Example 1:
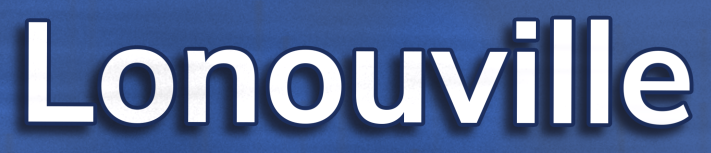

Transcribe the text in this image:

Lonouville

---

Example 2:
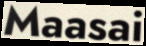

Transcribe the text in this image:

Maasai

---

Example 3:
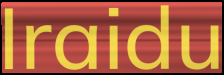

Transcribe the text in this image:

Iraidu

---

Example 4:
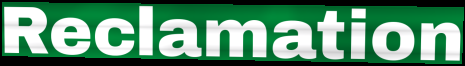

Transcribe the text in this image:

Reclamation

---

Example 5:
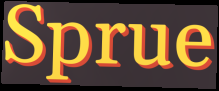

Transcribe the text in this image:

Sprue